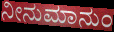
ನೀನುಮಾನುಂ